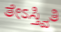
ತೇಽಸ್ತ್ವಿತಿ